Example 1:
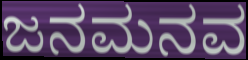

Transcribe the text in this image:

ಜನಮನವ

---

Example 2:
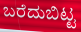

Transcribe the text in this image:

ಬರೆದುಬಿಟ್ಟ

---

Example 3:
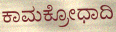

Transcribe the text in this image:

ಕಾಮಕ್ರೋಧಾದಿ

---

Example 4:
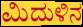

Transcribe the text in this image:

ಮಿದುಳಿನ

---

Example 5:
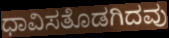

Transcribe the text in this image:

ಧಾವಿಸತೊಡಗಿದವು